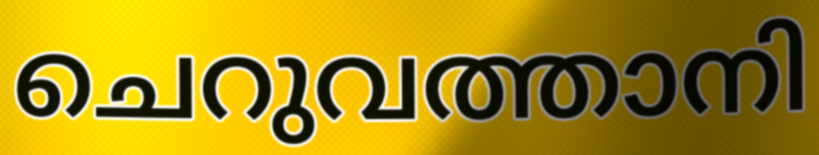
ചെറുവത്താനി